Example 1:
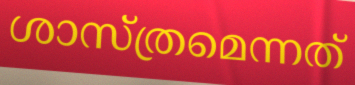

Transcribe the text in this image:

ശാസ്ത്രമെന്നത്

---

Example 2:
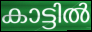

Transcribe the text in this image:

കാട്ടിൽ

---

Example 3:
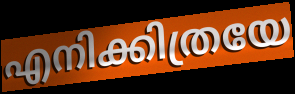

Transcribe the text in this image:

എനിക്കിത്രയേ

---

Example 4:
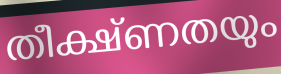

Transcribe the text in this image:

തീക്ഷ്‌ണതയും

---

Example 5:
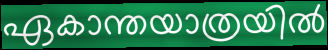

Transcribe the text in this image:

ഏകാന്തയാത്രയിൽ